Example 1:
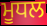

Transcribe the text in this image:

ਮੂਧਲ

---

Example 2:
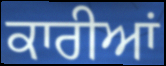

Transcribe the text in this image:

ਕਾਰੀਆਂ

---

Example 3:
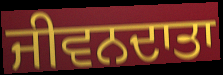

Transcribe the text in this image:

ਜੀਵਨਦਾਤਾ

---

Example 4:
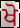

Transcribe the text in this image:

ਖੋ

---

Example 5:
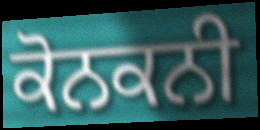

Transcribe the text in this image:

ਕੋਨਕਨੀ